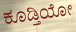
ಕೂಡ್ತಿಯೋ